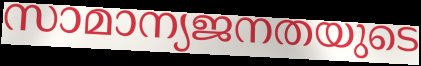
സാമാന്യജനതയുടെ